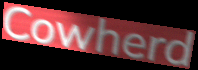
Cowherd